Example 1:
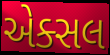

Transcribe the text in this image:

એક્સલ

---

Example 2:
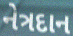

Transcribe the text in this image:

નેત્રદાન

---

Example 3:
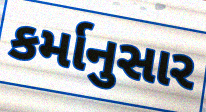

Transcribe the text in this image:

કર્માનુસાર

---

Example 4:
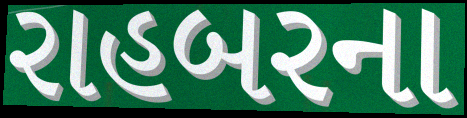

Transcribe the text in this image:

રાહબરના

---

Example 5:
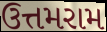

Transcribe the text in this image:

ઉત્તમરામ